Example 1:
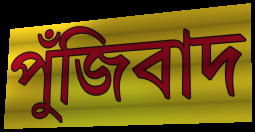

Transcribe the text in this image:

পুঁজিবাদ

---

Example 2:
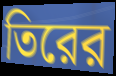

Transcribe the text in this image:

তিরের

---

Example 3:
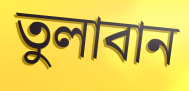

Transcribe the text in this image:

তুলাবান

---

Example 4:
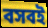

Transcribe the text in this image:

বসবই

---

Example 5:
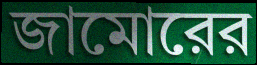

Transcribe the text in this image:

জামোরের